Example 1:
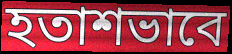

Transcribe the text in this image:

হতাশভাবে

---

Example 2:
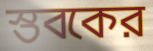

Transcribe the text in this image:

স্তবকের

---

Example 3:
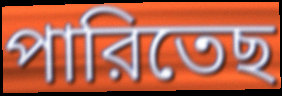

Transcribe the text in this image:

পারিতেছ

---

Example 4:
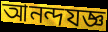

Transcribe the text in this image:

আনন্দযজ্ঞ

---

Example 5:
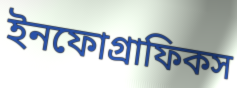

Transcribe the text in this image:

ইনফোগ্রাফিকস